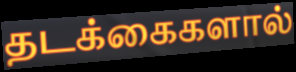
தடக்கைகளால்